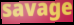
savage